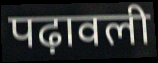
पढ़ावली